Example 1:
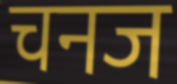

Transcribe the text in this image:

चनज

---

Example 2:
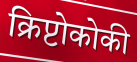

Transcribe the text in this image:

क्रिप्टोकोकी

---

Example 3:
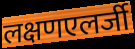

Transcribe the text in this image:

लक्षणएलर्जी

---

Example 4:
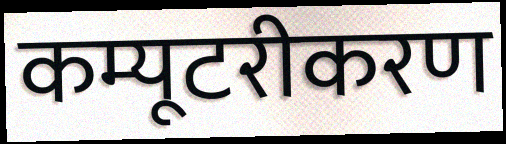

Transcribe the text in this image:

कम्यूटरीकरण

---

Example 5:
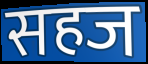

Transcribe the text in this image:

सहज